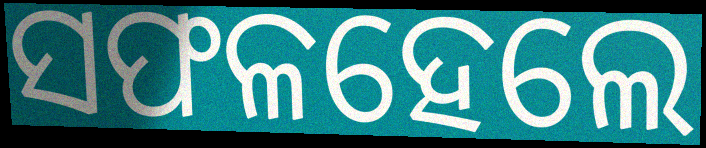
ସଫଳହେଲେ